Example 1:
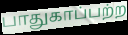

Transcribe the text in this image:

பாதுகாப்பற்ற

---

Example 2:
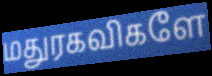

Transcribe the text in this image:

மதுரகவிகளே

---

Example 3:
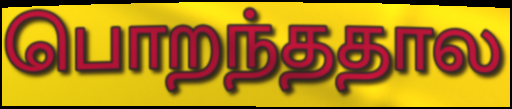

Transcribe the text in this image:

பொறந்ததால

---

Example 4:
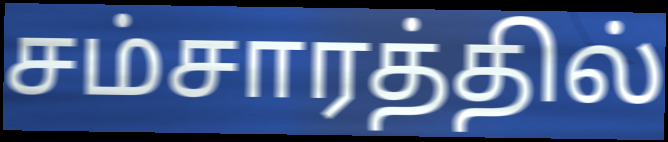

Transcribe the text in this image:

சம்சாரத்தில்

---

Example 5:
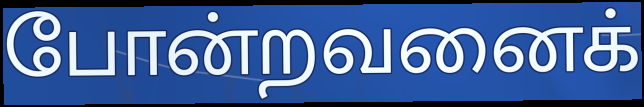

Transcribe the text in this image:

போன்றவனைக்